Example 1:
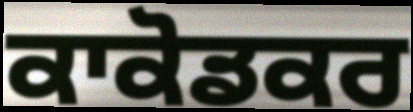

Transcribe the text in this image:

ਕਾਕੋਡਕਰ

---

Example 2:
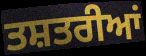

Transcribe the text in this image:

ਤਸ਼ਤਰੀਆਂ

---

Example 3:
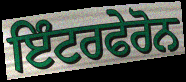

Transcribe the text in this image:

ਇੰਟਰਫੇਰੋਨ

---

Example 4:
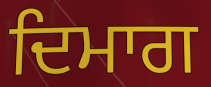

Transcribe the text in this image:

ਦਿਮਾਗ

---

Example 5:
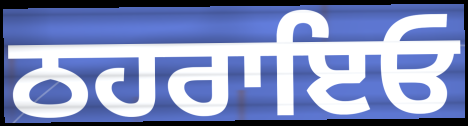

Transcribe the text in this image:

ਠਹਰਾਇਓ